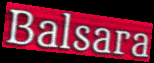
Balsara